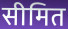
सीमित